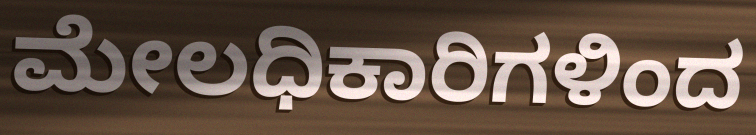
ಮೇಲಧಿಕಾರಿಗಳಿಂದ